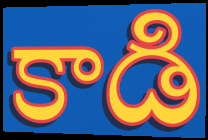
కాడి